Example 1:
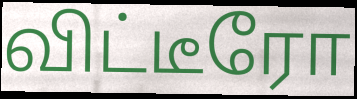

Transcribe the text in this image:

விட்டீரோ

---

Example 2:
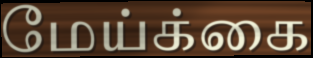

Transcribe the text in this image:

மேய்க்கை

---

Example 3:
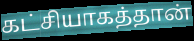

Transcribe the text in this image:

கட்சியாகத்தான்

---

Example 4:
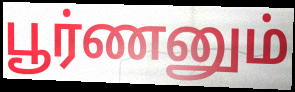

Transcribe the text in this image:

பூர்ணனும்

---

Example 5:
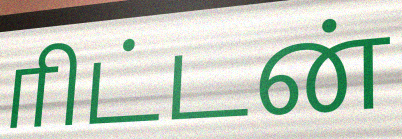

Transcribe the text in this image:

ரிட்டன்